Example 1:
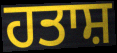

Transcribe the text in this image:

ਹਤਾਸ਼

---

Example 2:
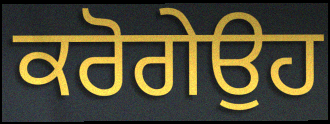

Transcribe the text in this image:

ਕਰੋਗੇਉਹ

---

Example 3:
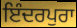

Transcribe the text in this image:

ਇੰਦਰਪੁਰਾ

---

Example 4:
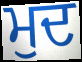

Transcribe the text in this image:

ਮੁਦ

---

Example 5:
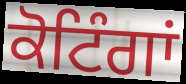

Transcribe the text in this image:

ਕੋਟਿੰਗਾਂ